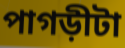
পাগড়ীটা